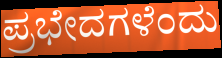
ಪ್ರಭೇದಗಳೆಂದು